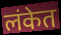
लंकेत